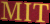
MIT